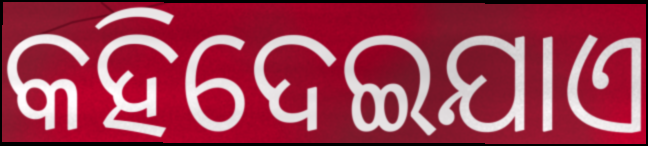
କହିଦେଇଯାଏ